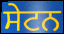
ਸੇਟਨ